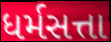
ધર્મસત્તા